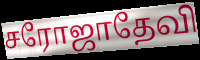
சரோஜாதேவி